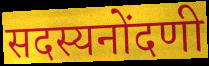
सदस्यनोंदणी